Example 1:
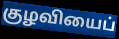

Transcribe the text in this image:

குழவியைப்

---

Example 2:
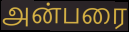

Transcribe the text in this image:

அன்பரை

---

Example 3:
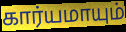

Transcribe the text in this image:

கார்யமாயும்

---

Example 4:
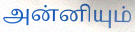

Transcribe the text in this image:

அன்னியும்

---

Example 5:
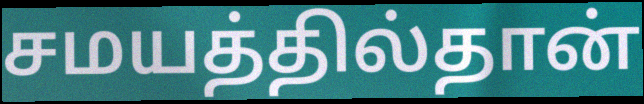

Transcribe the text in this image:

சமயத்தில்தான்